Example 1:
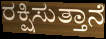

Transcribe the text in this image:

ರಕ್ಷಿಸುತ್ತಾನೆ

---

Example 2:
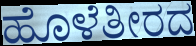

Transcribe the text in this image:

ಹೊಳೆತೀರದ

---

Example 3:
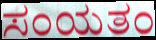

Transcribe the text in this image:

ಸಂಯತಂ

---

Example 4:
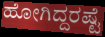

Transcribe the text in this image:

ಹೋಗಿದ್ದರಷ್ಟೆ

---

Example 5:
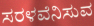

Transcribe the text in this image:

ಸರಳವೆನಿಸುವ